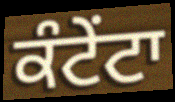
ਕੰਟੇਂਟਾ